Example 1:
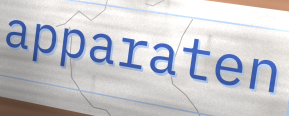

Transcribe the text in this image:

apparaten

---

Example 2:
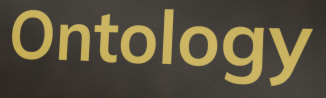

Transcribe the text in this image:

Ontology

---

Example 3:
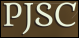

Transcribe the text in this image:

PJSC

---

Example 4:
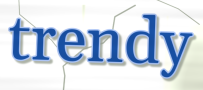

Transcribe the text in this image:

trendy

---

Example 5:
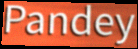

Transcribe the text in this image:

Pandey